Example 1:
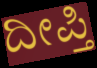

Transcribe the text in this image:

ದೀಪ್ತಿ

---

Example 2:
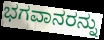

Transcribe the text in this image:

ಭಗವಾನರನ್ನು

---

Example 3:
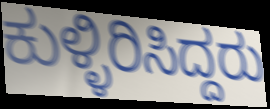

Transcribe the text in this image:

ಕುಳ್ಳಿರಿಸಿದ್ದರು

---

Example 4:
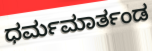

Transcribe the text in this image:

ಧರ್ಮಮಾರ್ತಂಡ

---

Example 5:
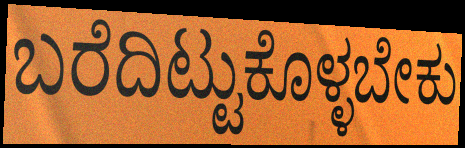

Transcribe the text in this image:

ಬರೆದಿಟ್ಟುಕೊಳ್ಳಬೇಕು